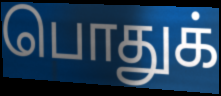
பொதுக்